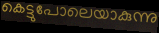
കെട്ടുപോലെയാകുന്നു